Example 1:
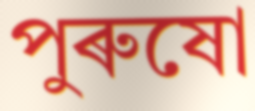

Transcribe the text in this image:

পুৰুষো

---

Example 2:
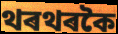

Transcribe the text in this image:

থৰথৰকৈ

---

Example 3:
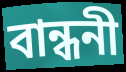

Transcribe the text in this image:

বান্ধনী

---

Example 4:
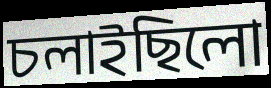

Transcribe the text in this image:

চলাইছিলো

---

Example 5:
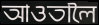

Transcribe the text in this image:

আওতালৈ